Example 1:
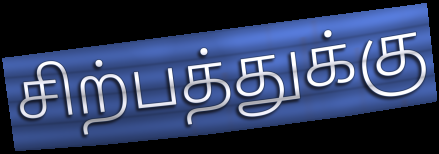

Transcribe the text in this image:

சிற்பத்துக்கு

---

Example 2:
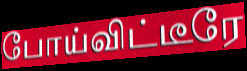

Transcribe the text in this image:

போய்விட்டீரே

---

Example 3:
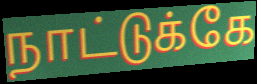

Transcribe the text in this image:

நாட்டுக்கே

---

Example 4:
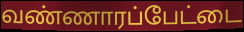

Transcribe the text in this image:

வண்ணாரப்பேட்டை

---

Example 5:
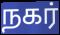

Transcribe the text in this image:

நகர்